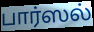
பார்ஸல்